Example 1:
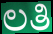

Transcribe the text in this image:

ಲತಿ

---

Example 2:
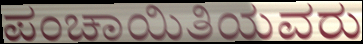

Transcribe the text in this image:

ಪಂಚಾಯಿತಿಯವರು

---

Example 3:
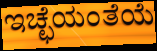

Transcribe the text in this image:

ಇಚ್ಛೆಯಂತೆಯೆ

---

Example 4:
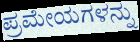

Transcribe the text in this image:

ಪ್ರಮೇಯಗಳನ್ನು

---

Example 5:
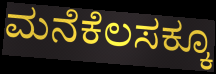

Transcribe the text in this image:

ಮನೆಕೆಲಸಕ್ಕೂ